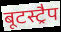
बूटस्ट्रैप